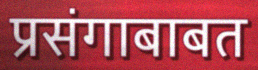
प्रसंगाबाबत